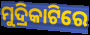
ମୁଦ୍ରିକାଟିରେ